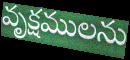
వృక్షములను